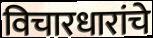
विचारधारांचे